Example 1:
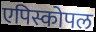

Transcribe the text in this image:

एपिस्कोपल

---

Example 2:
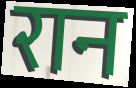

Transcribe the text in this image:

रान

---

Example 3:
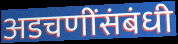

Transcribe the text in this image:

अडचणींसंबंधी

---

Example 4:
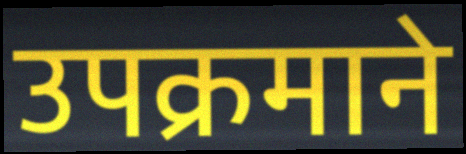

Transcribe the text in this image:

उपक्रमाने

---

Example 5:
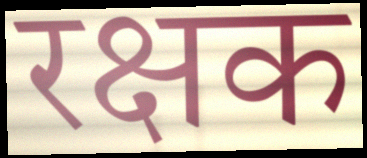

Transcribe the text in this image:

रक्षक